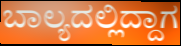
ಬಾಲ್ಯದಲ್ಲಿದ್ದಾಗ